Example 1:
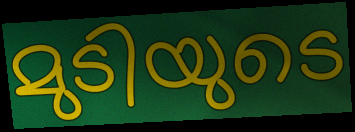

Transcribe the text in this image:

മുടിയുടെ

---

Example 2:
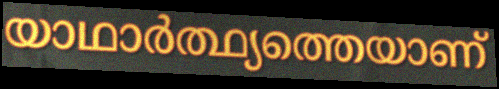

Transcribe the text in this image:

യാഥാർത്ഥ്യത്തെയാണ്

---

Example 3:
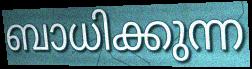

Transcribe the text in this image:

ബാധിക്കുന്ന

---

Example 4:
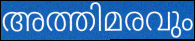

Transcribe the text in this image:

അത്തിമരവും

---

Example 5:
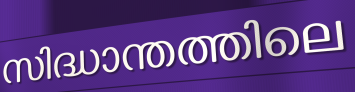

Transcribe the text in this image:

സിദ്ധാന്തത്തിലെ